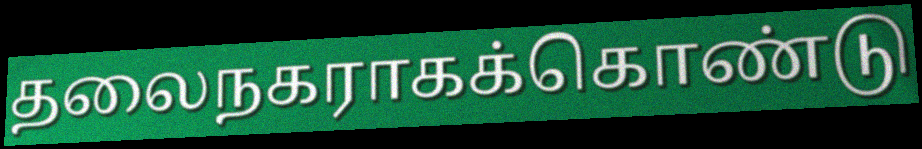
தலைநகராகக்கொண்டு